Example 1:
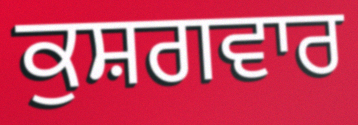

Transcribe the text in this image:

ਕੁਸ਼ਗਵਾਰ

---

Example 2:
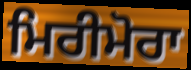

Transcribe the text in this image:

ਮਿਰੀਮੋਰਾ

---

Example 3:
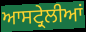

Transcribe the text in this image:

ਆਸਟ੍ਰੇਲੀਆਂ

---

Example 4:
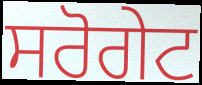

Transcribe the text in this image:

ਸਰੋਗੇਟ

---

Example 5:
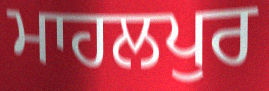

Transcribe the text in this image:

ਮਾਹਲਪੁਰ